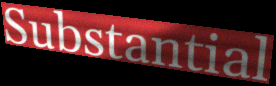
Substantial